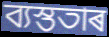
ব্যস্ততাৰ